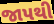
જાપથી